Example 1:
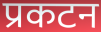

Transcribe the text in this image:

प्रकटन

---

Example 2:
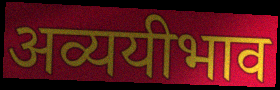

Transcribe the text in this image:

अव्ययीभाव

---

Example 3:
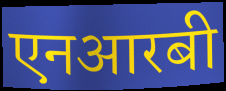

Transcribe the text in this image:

एनआरबी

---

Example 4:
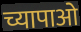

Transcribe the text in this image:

च्यापाओ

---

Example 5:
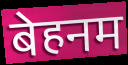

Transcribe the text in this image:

बेहनम